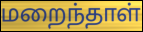
மறைந்தாள்